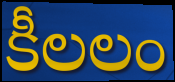
కీలలం